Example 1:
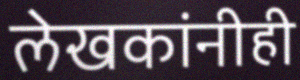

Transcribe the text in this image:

लेखकांनीही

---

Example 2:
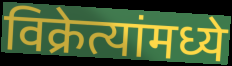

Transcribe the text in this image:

विक्रेत्यांमध्ये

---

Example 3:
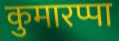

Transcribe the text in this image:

कुमारप्पा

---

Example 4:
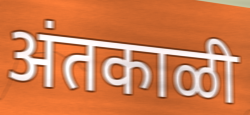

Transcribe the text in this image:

अंतकाळी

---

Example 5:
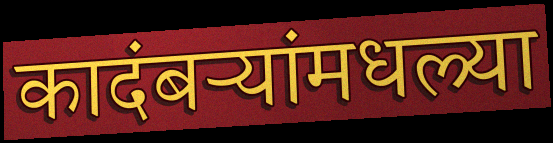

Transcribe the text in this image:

कादंबऱ्यांमधल्या